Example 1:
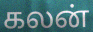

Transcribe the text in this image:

கலன்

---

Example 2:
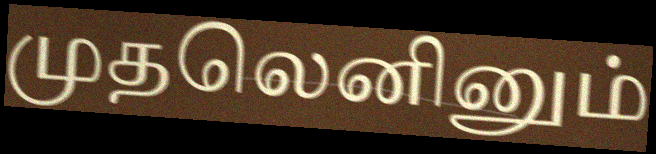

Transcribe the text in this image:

முதலெனினும்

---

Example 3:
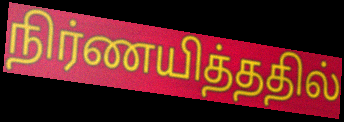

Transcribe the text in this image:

நிர்ணயித்ததில்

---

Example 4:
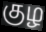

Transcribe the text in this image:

குழ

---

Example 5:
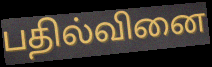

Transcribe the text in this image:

பதில்வினை